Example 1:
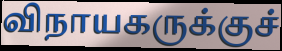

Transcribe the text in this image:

விநாயகருக்குச்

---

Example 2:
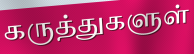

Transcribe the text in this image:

கருத்துகளுள்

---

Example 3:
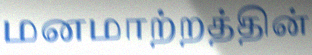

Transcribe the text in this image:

மனமாற்றத்தின்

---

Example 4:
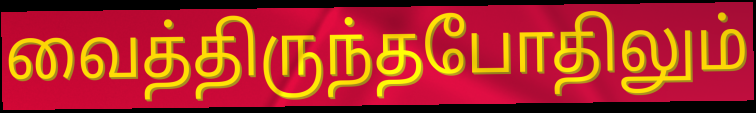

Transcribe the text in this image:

வைத்திருந்தபோதிலும்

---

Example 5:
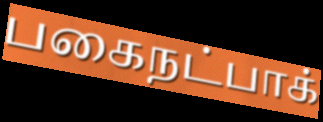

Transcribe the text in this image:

பகைநட்பாக்